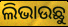
ଲିଭାଉଛୁ